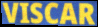
VISCAR